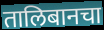
तालिबानचा